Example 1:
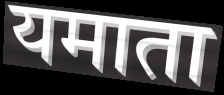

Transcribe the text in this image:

यमाता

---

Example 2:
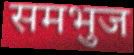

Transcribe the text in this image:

समभुज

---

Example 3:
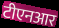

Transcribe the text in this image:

टीएनआर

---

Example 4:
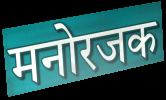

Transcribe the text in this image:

मनोरजक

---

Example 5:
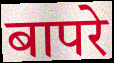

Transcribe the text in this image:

बापरे